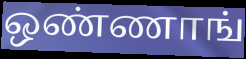
ஒண்ணாங்